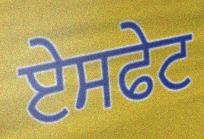
ਏਸਫੇਟ